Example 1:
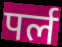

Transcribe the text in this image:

पर्ल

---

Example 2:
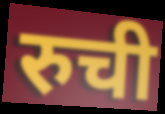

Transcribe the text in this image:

रुची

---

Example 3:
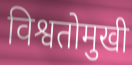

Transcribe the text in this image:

विश्वतोमुखी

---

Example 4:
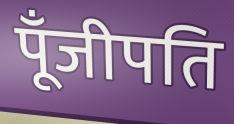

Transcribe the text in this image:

पूँजीपति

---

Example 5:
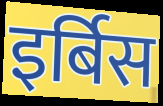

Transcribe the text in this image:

इर्बिस